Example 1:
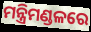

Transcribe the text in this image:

ମନ୍ତ୍ରିମଣ୍ଡଳରେ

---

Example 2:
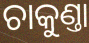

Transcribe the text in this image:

ଚାକୁଣ୍ତା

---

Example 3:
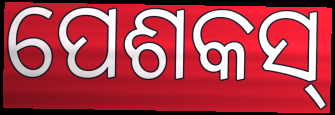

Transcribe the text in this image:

ପେଶକସ୍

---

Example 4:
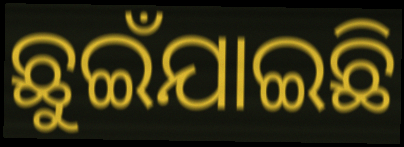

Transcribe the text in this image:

ଛୁଇଁଯାଇଛି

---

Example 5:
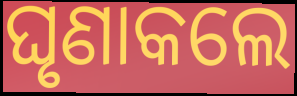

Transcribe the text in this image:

ଘୃଣାକଲେ